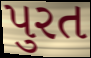
પુરત